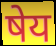
षेय